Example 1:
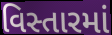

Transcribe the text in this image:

વિસ્તારમાં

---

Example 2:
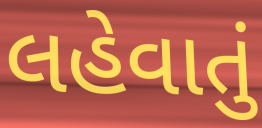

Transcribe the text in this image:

લહેવાતું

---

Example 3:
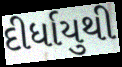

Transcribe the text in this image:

દીર્ધાયુથી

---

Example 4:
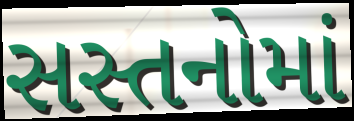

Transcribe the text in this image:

સસ્તનોમાં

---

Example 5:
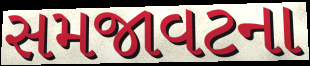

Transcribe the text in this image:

સમજાવટના